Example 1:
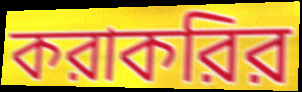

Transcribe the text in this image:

করাকরির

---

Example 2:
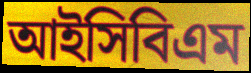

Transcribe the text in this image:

আইসিবিএম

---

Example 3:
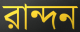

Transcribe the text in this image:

রান্দন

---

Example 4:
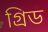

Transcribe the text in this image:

গ্রিড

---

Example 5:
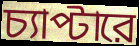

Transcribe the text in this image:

চ্যাপ্টারে